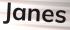
Janes